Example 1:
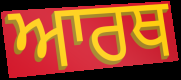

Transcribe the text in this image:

ਆਰਥ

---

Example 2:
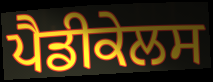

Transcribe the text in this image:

ਪੈਡੀਕੇਲਸ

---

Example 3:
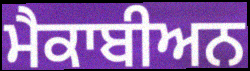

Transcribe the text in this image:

ਮੈਕਾਬੀਅਨ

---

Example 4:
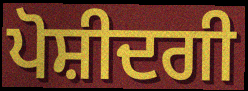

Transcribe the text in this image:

ਪੋਸ਼ੀਦਗੀ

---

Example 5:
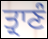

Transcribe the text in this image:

ਤ੍ਰਾਣੰ